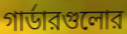
গার্ডারগুলোর